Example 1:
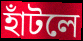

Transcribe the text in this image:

হাঁটলে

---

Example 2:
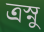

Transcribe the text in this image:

ত্রস্নু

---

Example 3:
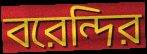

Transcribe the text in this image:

বরেন্দির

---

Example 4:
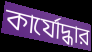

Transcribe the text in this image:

কার্যোদ্ধার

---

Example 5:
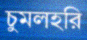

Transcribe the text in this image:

চুমলহরি